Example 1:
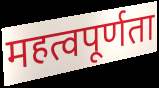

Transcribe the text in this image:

महत्वपूर्णता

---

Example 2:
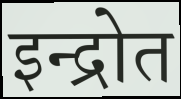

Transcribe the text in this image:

इन्द्रोत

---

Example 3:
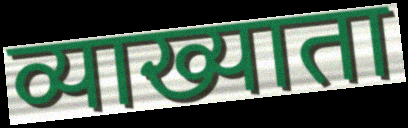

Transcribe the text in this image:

व्याख्याता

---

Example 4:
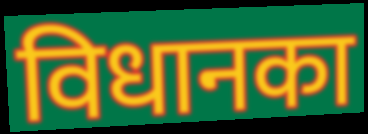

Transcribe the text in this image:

विधानका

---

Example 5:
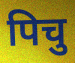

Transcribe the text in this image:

पिचु